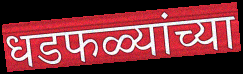
धडफळ्यांच्या